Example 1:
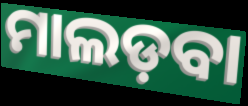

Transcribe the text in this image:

ମାଲଡ଼ବା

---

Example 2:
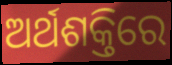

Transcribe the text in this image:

ଅର୍ଥଶକ୍ତିରେ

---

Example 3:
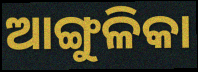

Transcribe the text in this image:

ଆଙ୍ଗୁଳିକା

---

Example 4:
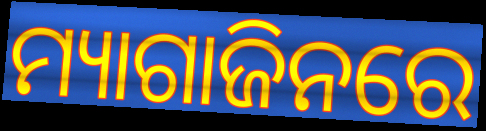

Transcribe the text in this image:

ମ୍ୟାଗାଜିନରେ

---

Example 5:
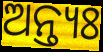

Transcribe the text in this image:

ଅନ୍ତ୍ୟଃ